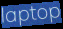
laptop